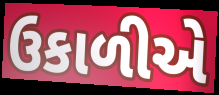
ઉકાળીએ